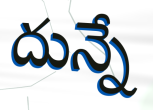
దున్నే